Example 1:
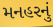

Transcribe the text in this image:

મનહરનું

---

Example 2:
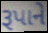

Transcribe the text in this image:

રૂપાને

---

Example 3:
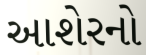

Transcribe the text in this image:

આશેરનો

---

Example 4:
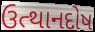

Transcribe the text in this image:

ઉત્થાનદોષ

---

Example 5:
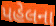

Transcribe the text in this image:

પહેલના